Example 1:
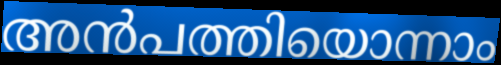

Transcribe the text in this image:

അൻപത്തിയൊന്നാം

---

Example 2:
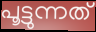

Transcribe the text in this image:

പൂട്ടുന്നത്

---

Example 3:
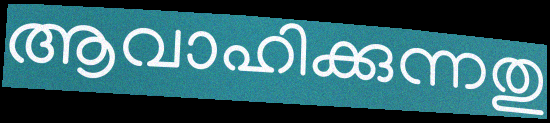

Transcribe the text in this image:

ആവാഹിക്കുന്നതു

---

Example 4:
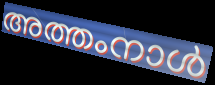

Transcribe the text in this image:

അത്തംനാൾ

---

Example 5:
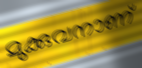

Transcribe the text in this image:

മുക്കുവനാണ്